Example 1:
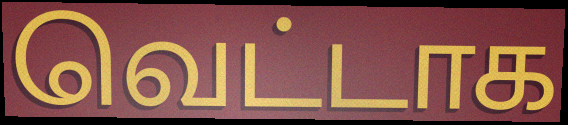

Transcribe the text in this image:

வெட்டாக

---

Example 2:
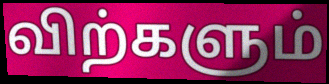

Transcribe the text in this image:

விற்களும்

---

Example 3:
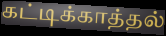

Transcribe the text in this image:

கட்டிக்காத்தல்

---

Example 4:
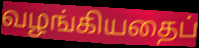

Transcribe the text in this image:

வழங்கியதைப்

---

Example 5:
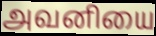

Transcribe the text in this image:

அவனியை